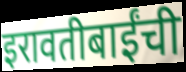
इरावतीबाईंची